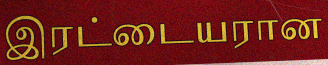
இரட்டையரான